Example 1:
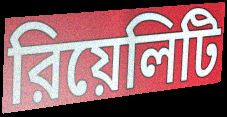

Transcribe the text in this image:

রিয়েলিটি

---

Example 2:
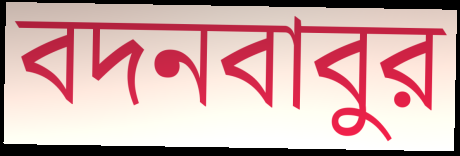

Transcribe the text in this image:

বদনবাবুর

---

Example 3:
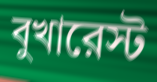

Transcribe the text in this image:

বুখারেস্ট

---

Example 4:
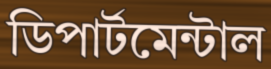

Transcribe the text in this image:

ডিপার্টমেন্টাল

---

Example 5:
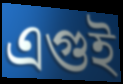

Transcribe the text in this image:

এগুই